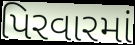
પિરવારમાં